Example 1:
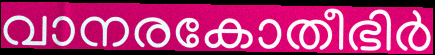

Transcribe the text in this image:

വാനരകോതീഭിർ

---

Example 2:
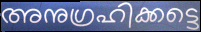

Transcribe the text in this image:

അനുഗ്രഹിക്കട്ടെ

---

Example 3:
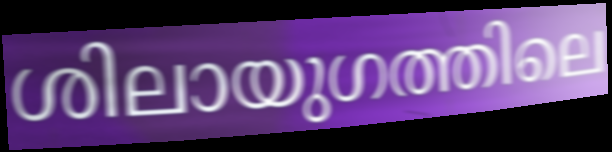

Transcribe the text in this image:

ശിലായുഗത്തിലെ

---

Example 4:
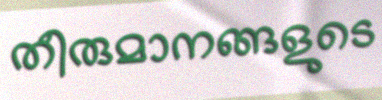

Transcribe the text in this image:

തീരുമാനങ്ങളുടെ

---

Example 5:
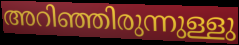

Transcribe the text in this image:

അറിഞ്ഞിരുന്നുള്ളു